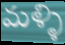
మళ్ళి